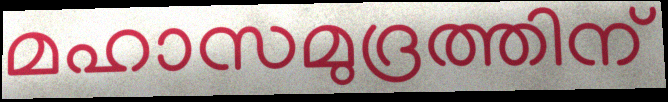
മഹാസമുദ്രത്തിന്